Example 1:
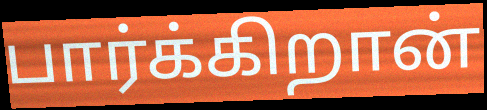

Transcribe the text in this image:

பார்க்கிறான்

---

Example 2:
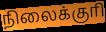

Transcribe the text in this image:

நிலைக்குரி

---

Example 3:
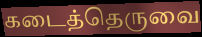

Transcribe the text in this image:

கடைத்தெருவை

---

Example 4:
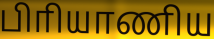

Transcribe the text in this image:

பிரியாணிய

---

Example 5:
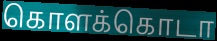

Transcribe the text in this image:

கொளக்கொடா